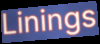
Linings